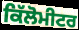
ਕਿੱਲੋਮੀਟਰ